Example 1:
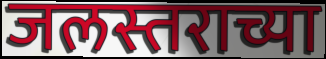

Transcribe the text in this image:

जलस्तराच्या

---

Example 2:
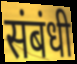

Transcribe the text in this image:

संबंधी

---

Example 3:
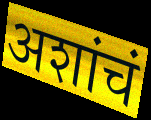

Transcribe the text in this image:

अशांचं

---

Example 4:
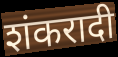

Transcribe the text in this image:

शंकरादी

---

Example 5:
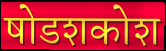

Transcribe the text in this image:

षोडशकोश